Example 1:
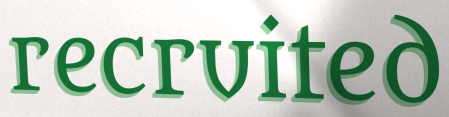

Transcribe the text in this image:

recruited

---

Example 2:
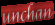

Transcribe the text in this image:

unchan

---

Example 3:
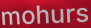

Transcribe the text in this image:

mohurs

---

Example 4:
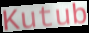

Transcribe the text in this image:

Kutub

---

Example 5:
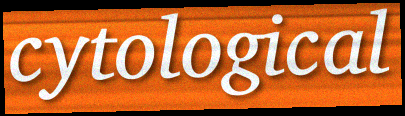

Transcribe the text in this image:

cytological